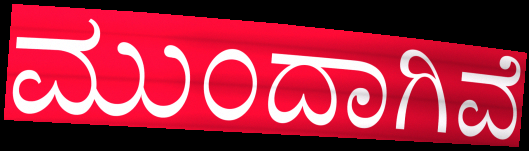
ಮುಂದಾಗಿವೆ